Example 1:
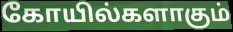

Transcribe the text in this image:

கோயில்களாகும்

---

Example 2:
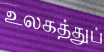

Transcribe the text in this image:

உலகத்துப்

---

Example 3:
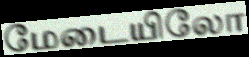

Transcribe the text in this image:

மேடையிலோ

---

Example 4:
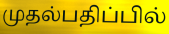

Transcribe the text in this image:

முதல்பதிப்பில்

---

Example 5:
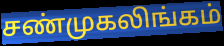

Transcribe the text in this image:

சண்முகலிங்கம்